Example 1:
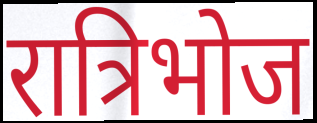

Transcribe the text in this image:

रात्रिभोज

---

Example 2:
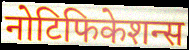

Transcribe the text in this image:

नोटिफिकेशन्स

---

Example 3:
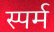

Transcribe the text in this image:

स्पर्म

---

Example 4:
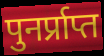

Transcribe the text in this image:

पुनर्प्राप्त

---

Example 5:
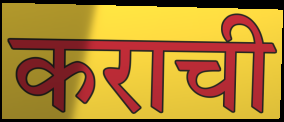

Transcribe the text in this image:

कराची